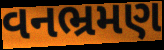
વનભ્રમણ